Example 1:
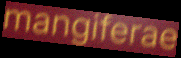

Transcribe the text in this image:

mangiferae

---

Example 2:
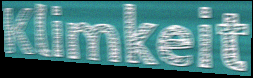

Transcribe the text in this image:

Klimkeit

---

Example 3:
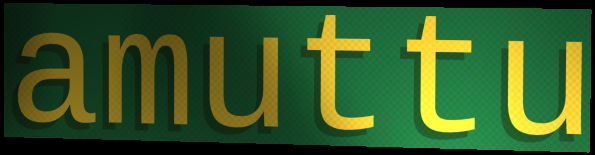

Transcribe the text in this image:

amuttu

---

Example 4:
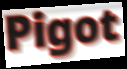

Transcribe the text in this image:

Pigot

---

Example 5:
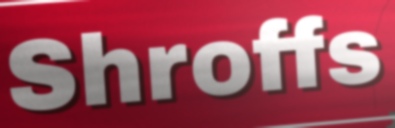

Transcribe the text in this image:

Shroffs